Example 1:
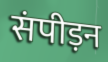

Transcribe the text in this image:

संपीड़न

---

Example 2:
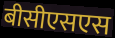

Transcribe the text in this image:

बीसीएसएस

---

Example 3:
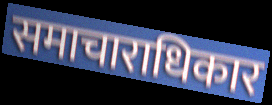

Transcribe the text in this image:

समाचाराधिकार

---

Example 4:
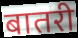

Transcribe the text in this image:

बातरी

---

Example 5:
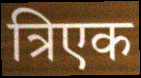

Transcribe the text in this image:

त्रिएक